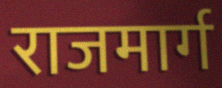
राजमार्ग